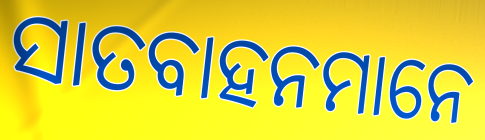
ସାତବାହନମାନେ